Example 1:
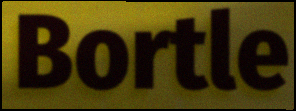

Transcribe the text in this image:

Bortle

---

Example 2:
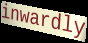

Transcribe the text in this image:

inwardly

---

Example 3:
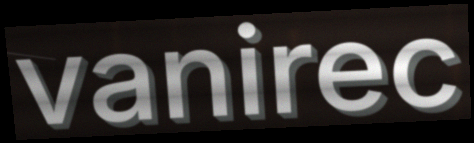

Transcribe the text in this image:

vanirec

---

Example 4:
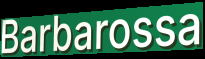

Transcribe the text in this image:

Barbarossa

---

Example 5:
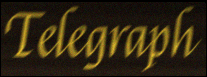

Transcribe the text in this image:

Telegraph